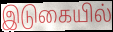
இடுகையில்